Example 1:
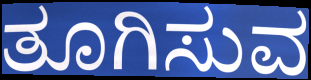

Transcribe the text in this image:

ತೂಗಿಸುವ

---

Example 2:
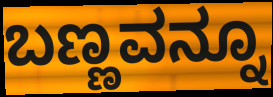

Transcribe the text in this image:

ಬಣ್ಣವನ್ನೂ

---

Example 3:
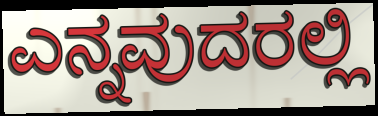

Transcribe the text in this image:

ಎನ್ನವುದರಲ್ಲಿ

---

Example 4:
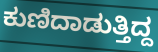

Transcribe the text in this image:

ಕುಣಿದಾಡುತ್ತಿದ್ದ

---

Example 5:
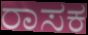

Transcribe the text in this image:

ರಾಸಕ